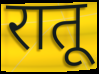
रातू